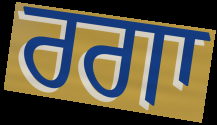
ਰਗਾ